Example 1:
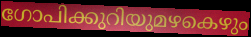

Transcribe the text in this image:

ഗോപിക്കുറിയുമഴകെഴും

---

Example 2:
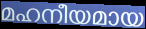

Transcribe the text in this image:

മഹനീയമായ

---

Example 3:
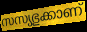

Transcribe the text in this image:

സസ്യഭുക്കാണ്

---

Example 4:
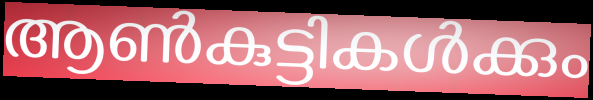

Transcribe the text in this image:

ആൺകുട്ടികൾക്കും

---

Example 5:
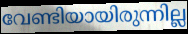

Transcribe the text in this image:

വേണ്ടിയായിരുന്നില്ല